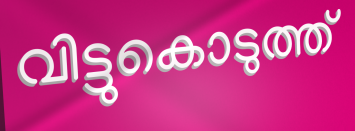
വിട്ടുകൊടുത്ത്